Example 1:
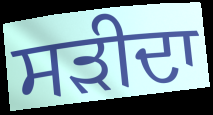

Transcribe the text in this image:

ਸੜੀਦਾ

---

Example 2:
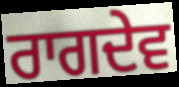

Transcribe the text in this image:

ਰਾਗਦੇਵ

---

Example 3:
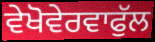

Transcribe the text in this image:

ਵੇਖੋਵੇਰਵਾਫੁੱਲ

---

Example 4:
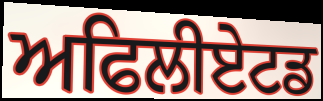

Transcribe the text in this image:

ਅਫਿਲੀਏਟਡ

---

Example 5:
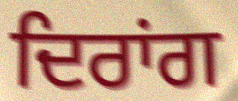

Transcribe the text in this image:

ਦਿਰਾਂਗ